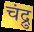
चंद्रु